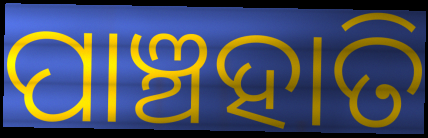
ପାଞ୍ଚହାତି